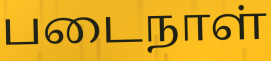
படைநாள்